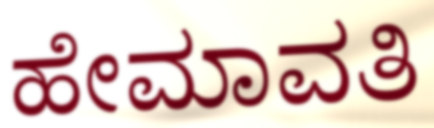
ಹೇಮಾವತಿ